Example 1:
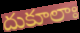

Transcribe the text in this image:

దుకూలాః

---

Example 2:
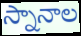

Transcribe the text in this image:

స్నానాల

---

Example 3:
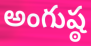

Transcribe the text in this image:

అంగుష్ఠ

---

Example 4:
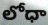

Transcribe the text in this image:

లోధా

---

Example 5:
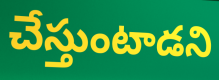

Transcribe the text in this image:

చేస్తుంటాడని